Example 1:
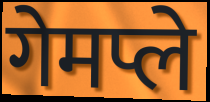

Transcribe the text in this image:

गेमप्ले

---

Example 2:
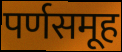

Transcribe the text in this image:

पर्णसमूह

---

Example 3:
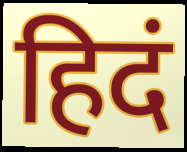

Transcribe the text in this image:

हिदं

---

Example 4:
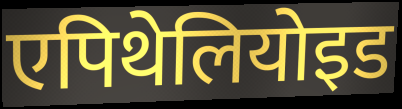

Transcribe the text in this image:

एपिथेलियोइड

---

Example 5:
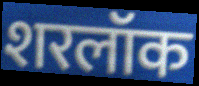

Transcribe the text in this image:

शरलॉक